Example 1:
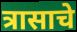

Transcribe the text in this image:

त्रासाचे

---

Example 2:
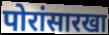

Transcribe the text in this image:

पोरांसारखा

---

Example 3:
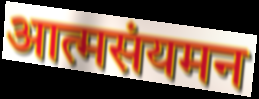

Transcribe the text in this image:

आत्मसंयमन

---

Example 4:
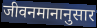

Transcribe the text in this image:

जीवनमानानुसार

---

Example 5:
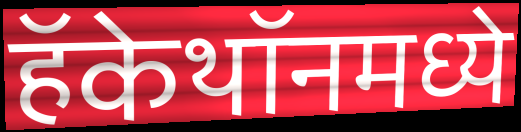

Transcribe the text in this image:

हॅकेथॉनमध्ये